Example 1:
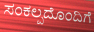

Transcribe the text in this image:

ಸಂಕಲ್ಪದೊಂದಿಗೆ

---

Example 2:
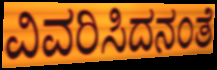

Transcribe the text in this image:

ವಿವರಿಸಿದನಂತೆ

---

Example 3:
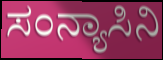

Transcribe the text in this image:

ಸಂನ್ಯಾಸಿನಿ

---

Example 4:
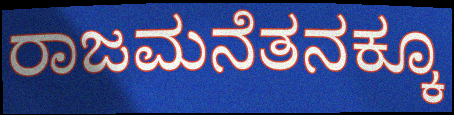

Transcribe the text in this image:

ರಾಜಮನೆತನಕ್ಕೂ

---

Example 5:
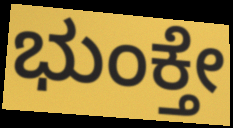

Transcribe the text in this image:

ಭುಂಕ್ತೇ